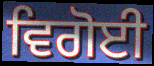
ਵਿਗੋਈ